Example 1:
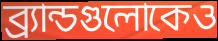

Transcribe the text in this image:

ব্র্যান্ডগুলোকেও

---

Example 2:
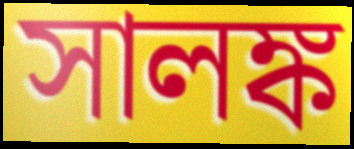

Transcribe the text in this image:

সালঙ্ক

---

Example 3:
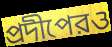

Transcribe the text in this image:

প্রদীপেরও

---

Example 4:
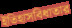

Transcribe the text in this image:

ইতিহাসবিধাতার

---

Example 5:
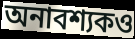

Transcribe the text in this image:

অনাবশ্যকও